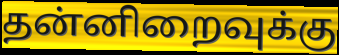
தன்னிறைவுக்கு